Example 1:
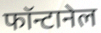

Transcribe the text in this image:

फॉन्टानेल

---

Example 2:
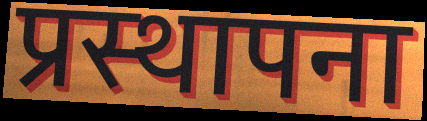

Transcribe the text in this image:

प्रस्थापना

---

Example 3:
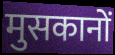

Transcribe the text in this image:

मुसकानों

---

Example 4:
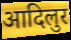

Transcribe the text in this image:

आदिलुर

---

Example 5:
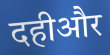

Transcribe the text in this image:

दहीऔर